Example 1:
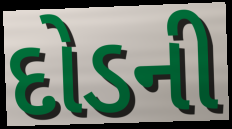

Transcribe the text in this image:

દોડની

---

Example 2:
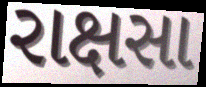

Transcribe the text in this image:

રાક્ષસા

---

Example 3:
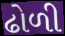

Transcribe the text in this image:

ઢોળી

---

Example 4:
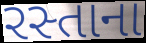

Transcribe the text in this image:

રસ્તાના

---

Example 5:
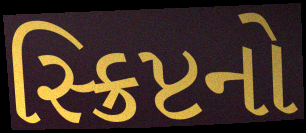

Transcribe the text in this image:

સ્ક્રિપ્ટનો